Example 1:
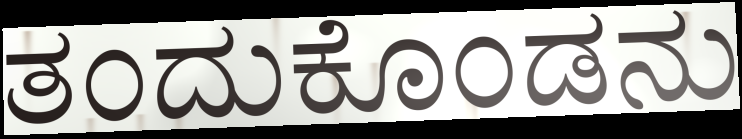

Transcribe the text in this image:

ತಂದುಕೊಂಡನು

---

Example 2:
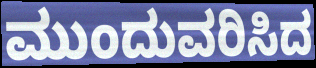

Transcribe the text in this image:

ಮುಂದುವರಿಸಿದ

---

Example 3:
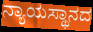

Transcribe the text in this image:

ನ್ಯಾಯಸ್ಥಾನದ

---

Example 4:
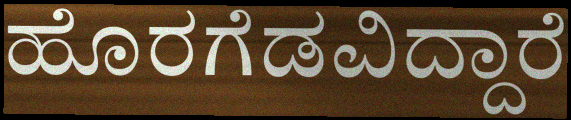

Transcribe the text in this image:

ಹೊರಗೆಡವಿದ್ದಾರೆ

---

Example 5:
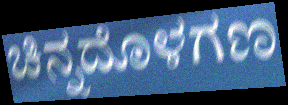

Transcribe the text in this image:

ಚಿನ್ನದೊಳಗಣ